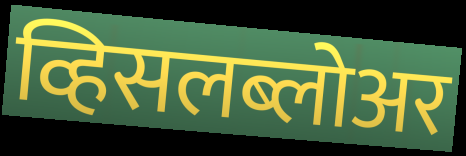
व्हिसलब्लोअर